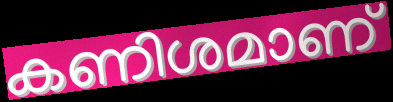
കണിശമാണ്